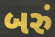
બરું